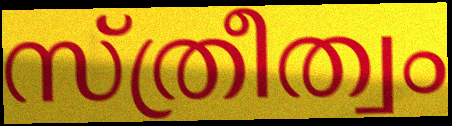
സ്ത്രീത്വം